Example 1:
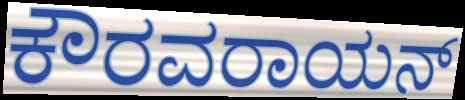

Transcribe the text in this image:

ಕೌರವರಾಯನ್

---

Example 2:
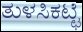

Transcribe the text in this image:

ತುಳಸಿಕಟ್ಟೆ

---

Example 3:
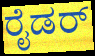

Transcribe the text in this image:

ರೈಡರ್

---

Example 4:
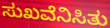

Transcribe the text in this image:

ಸುಖವೆನಿಸಿತು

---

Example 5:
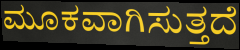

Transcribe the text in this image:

ಮೂಕವಾಗಿಸುತ್ತದೆ